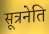
सूत्रनेति